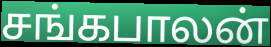
சங்கபாலன்